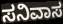
ಸನಿವಾಸ